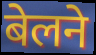
बेलने